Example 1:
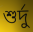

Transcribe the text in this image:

শুর্দু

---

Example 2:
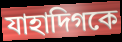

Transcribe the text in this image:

যাহাদিগকে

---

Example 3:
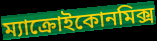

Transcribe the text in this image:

ম্যাক্রোইকোনমিক্স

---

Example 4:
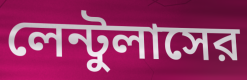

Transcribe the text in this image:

লেন্টুলাসের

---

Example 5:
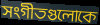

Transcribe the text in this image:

সংগীতগুলোকে